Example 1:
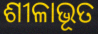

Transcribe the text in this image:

ଶୀଳାଭୂତ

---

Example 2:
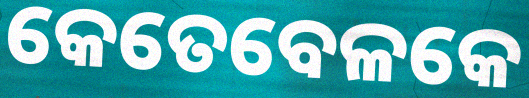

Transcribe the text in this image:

କେତେବେଳକେ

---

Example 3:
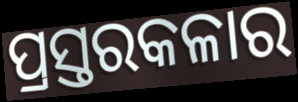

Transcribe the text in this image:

ପ୍ରସ୍ତରକଳାର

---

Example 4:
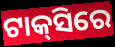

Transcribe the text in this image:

ଟାକ୍‌ସିରେ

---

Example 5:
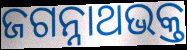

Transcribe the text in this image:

ଜଗନ୍ନାଥଭକ୍ତ